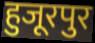
हुजूरपुर